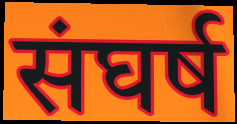
संघर्ष